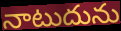
నాటుదును